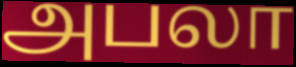
அபலா